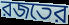
রজতের